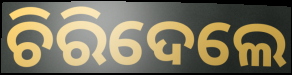
ଚିରିଦେଲେ